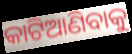
କାଟିଆଣିବାକୁ